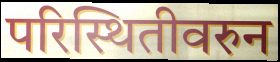
परिस्थितीवरुन